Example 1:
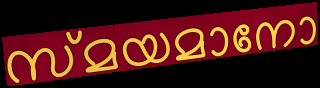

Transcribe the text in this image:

സ്മയമാനോ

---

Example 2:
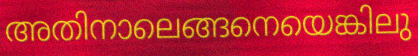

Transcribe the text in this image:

അതിനാലെങ്ങനെയെങ്കിലു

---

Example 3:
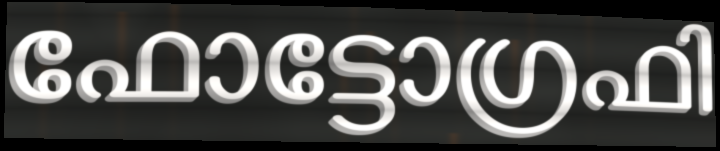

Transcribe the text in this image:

ഫോട്ടോഗ്രഫി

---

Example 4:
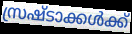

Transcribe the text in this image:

സ്രഷ്ടാക്കൾക്ക്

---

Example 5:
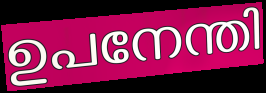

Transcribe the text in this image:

ഉപനേന്തി